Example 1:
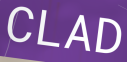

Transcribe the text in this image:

CLAD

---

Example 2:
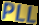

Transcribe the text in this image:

PLL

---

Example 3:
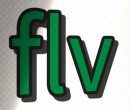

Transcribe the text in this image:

flv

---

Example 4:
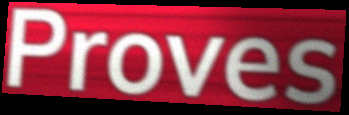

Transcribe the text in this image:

Proves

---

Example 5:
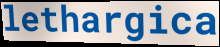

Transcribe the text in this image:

lethargica